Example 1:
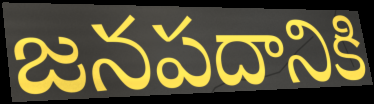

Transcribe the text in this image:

జనపదానికి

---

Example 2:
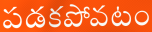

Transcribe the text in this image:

పడకపోవటం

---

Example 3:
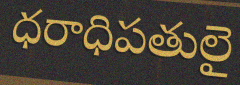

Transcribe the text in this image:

ధరాధిపతులై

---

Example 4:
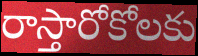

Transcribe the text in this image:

రాస్తారోకోలకు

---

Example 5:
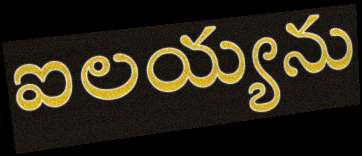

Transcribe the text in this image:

ఐలయ్యను